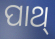
ପାଥ୍